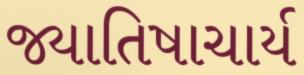
જ્યાતિષાચાર્ય